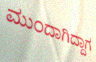
ಮುಂದಾಗಿದ್ದಾಗ